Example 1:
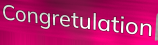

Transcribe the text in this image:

Congretulation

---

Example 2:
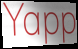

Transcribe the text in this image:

Yapp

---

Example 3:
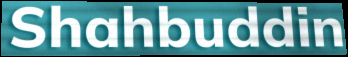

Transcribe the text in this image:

Shahbuddin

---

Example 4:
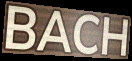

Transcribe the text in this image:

BACH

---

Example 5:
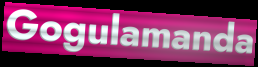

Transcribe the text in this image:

Gogulamanda